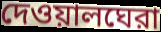
দেওয়ালঘেরা